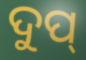
ଦୁପ୍